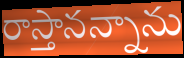
రాస్తానన్నాను